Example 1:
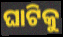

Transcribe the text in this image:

ଘାଟିକୁ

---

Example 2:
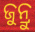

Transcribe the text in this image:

ଜୁନ୍ରୁ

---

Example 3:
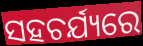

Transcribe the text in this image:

ସହଚର୍ଯ୍ୟରେ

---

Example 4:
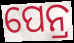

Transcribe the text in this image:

ପେନ୍ର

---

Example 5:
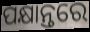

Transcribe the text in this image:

ପକ୍ଷାନ୍ତରେ